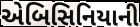
એબિસિનિયાની